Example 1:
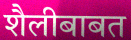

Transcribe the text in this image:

शैलीबाबत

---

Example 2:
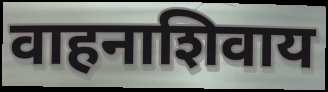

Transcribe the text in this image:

वाहनाशिवाय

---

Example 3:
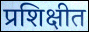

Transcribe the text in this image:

प्रशिक्षीत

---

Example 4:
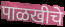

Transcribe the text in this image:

पाळखीचे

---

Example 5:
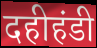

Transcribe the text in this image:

दहीहंडी